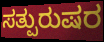
ಸತ್ಪುರುಷರ